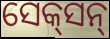
ସେକ୍‌ସନ୍